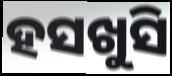
ହସଖୁସି